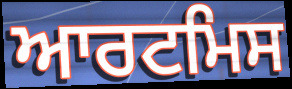
ਆਰਟਮਿਸ